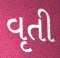
વૃતી